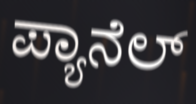
ಪ್ಯಾನೆಲ್